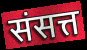
संसत्त